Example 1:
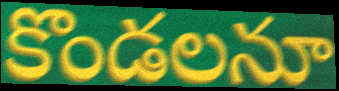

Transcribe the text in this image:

కొండలనూ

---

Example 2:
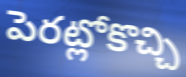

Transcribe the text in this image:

పెరట్లోకొచ్చి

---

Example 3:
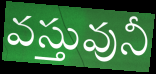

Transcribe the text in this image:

వస్తువునీ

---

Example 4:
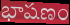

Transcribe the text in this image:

భాషణం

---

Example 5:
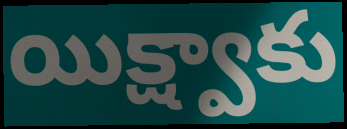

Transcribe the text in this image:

యిక్ష్వాకు